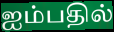
ஐம்பதில்